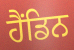
ਹੈਂਡਿਨ